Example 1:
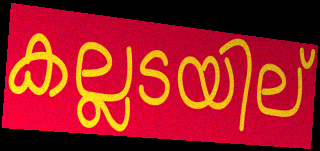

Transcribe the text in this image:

കല്ലടയില്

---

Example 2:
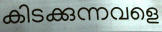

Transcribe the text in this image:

കിടക്കുന്നവളെ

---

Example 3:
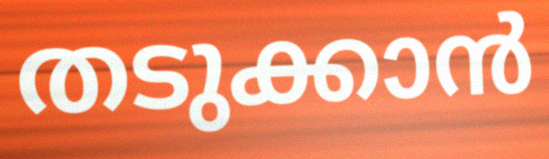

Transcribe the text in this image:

തടുക്കാൻ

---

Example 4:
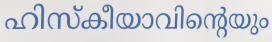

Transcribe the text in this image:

ഹിസ്കീയാവിന്റെയും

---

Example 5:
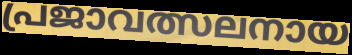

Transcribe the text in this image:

പ്രജാവത്സലനായ